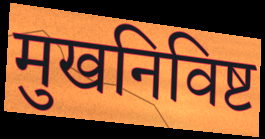
मुखनिविष्ट